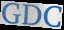
GDC